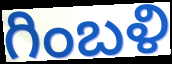
గింబళి